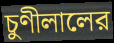
চুণীলালের